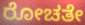
ರೋಚತೇ